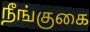
நீங்குகை